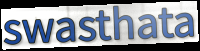
swasthata